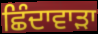
ਛਿੰਦਾਵਾੜਾ